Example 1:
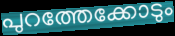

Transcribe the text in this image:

പുറത്തേക്കോടും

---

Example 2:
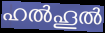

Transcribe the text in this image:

ഹൽഹൂൽ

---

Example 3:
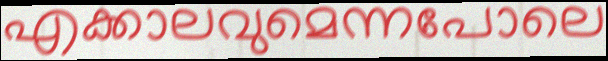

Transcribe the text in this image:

എക്കാലവുമെന്നപോലെ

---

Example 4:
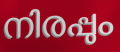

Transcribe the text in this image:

നിരപ്പും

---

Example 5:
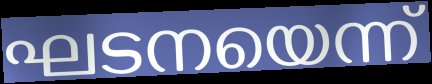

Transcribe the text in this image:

ഘടനയെന്ന്